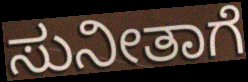
ಸುನೀತಾಗೆ